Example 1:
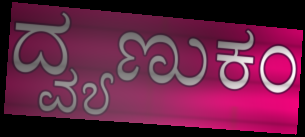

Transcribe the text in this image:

ದ್ವ್ಯಣುಕಂ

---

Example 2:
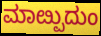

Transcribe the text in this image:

ಮಾೞ್ಪುದುಂ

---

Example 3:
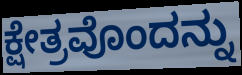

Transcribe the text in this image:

ಕ್ಷೇತ್ರವೊಂದನ್ನು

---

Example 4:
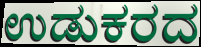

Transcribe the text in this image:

ಉಡುಕರದ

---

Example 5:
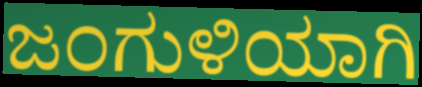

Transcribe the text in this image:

ಜಂಗುಳಿಯಾಗಿ